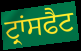
ਟ੍ਰਾਂਸਫੈਟ